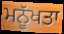
ਮਨੂੱਖਤਾ